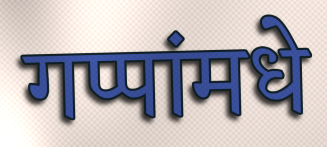
गप्पांमधे